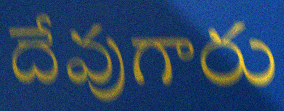
దేవుగారు